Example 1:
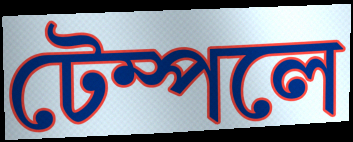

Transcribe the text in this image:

টেম্পলে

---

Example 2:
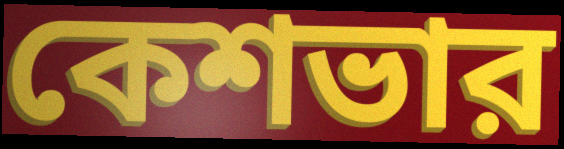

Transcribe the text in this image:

কেশভার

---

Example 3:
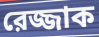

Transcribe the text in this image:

রেজ্জাক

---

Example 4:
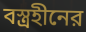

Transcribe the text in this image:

বস্ত্রহীনের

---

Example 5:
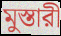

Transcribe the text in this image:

মুস্তারী